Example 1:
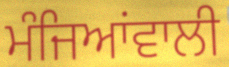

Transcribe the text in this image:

ਮੰਜਿਆਂਵਾਲੀ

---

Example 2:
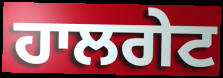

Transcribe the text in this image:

ਹਾਲਗੇਟ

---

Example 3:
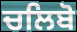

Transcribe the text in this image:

ਚਲਿਬੋ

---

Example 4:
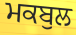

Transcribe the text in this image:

ਮਕਬੁਲ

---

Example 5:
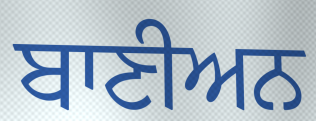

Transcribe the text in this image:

ਬਾਣੀਅਨ